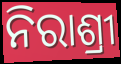
ନିରାଶ୍ରୀ